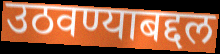
उठवण्याबद्दल